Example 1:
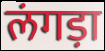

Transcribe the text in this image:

लंगड़ा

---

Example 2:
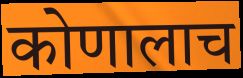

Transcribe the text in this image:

कोणालाच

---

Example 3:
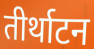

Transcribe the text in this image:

तीर्थाटन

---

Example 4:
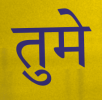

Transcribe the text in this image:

तुमे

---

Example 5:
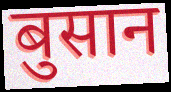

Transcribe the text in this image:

बुसान